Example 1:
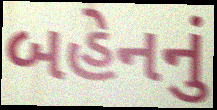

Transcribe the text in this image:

બહેનનું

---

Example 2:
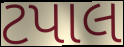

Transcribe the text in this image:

ટપાલ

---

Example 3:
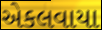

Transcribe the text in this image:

એકલવાયા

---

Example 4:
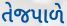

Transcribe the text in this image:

તેજપાળે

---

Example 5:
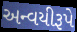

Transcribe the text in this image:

અન્વયીરૂપે